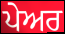
ਪੇਅਰ